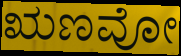
ಋಣವೋ